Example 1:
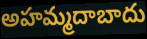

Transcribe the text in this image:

అహమ్మదాబాదు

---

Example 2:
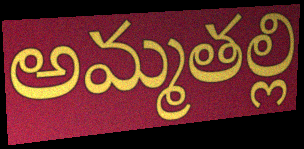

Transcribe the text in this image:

అమ్మతల్లి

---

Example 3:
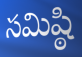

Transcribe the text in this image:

సమిష్ఠి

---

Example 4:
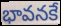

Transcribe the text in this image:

భావనకే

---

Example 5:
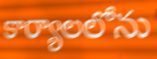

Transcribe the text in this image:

కార్యాలలోను